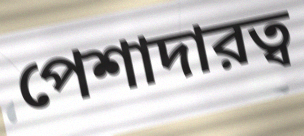
পেশাদারত্ব